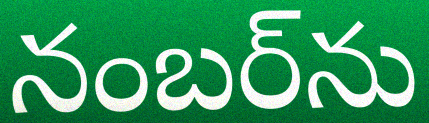
నంబర్‌ను